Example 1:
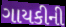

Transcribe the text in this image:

ગાયકીની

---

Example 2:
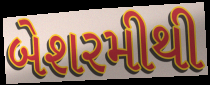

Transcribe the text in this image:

બેશરમીથી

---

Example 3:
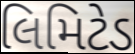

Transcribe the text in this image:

લિમિટેડ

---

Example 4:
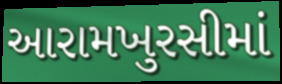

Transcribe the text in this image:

આરામખુરસીમાં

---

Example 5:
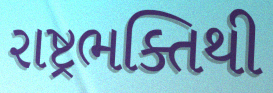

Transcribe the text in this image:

રાષ્ટ્રભક્તિથી